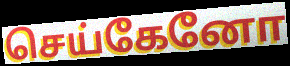
செய்கேனோ